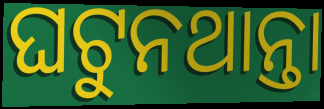
ଘଟୁନଥାନ୍ତା